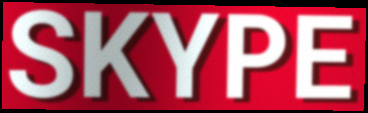
SKYPE